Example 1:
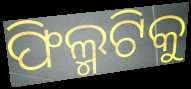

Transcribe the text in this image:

ଫିଲ୍ମଟିକୁ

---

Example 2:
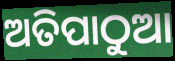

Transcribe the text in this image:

ଅତିପାଠୁଆ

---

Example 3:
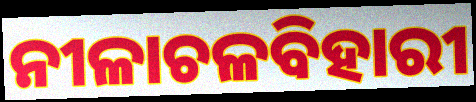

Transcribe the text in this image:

ନୀଳାଚଳବିହାରୀ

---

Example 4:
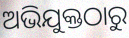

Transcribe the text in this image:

ଅଭିଯୁକ୍ତଠାରୁ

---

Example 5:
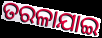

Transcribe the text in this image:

ତରଳାଯାଇ